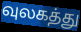
வுலகத்து